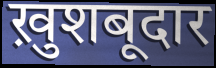
ख़ुशबूदार